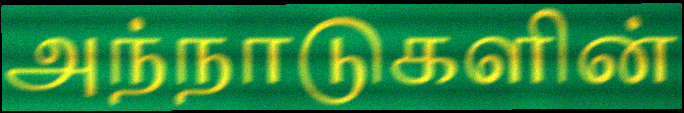
அந்நாடுகளின்